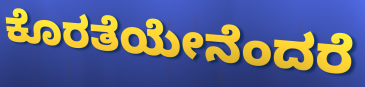
ಕೊರತೆಯೇನೆಂದರೆ